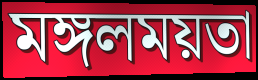
মঙ্গলময়তা